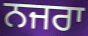
ਨਜਰਾ